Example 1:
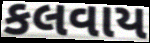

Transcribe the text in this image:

કલવાય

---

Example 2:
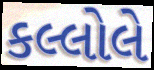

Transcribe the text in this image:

કલ્લોલે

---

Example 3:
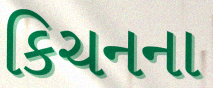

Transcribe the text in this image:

કિચનના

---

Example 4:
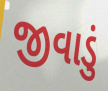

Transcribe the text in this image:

જીવાડું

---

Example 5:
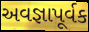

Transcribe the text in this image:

અવજ્ઞાપૂર્વક